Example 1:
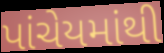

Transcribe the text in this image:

પાંચેયમાંથી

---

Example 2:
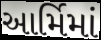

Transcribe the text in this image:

આર્મિમાં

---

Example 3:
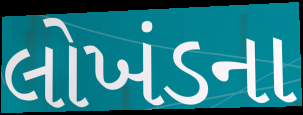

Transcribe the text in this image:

લોખંડના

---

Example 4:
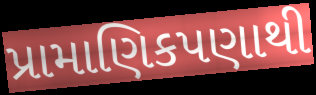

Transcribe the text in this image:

પ્રામાણિકપણાથી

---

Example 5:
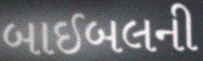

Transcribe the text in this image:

બાઈબલની